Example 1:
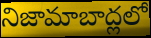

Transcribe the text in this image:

నిజామాబాద్లలో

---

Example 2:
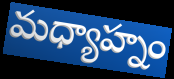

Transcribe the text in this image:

మధ్యాహ్నం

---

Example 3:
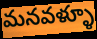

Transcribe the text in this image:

మనవళ్ళూ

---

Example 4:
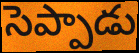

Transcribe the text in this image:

సెప్పాడు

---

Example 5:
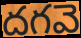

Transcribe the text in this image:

దగవె